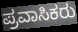
ಪ್ರವಾಸಿಕರು